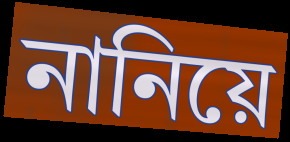
নানিয়ে